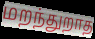
மறந்துறாத